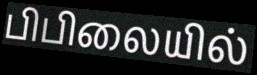
பிபிலையில்